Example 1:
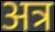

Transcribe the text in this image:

अत्र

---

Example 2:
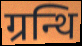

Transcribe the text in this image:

ग्रन्थि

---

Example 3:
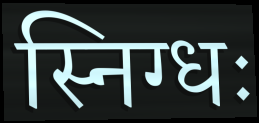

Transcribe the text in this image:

स्निग्धः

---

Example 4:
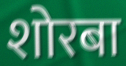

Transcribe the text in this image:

शोरबा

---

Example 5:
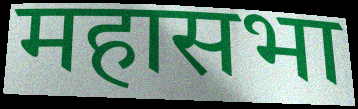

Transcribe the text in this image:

महासभा